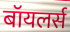
बॉयलर्स